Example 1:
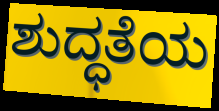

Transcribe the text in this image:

ಶುದ್ಧತೆಯ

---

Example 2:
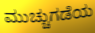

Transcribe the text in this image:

ಮುಚ್ಚುಗಡೆಯ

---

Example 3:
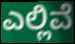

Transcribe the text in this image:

ಎಲ್ಲಿವೆ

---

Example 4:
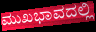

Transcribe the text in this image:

ಮುಖಭಾವದಲ್ಲಿ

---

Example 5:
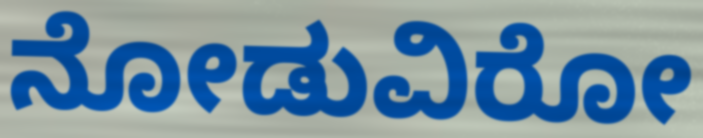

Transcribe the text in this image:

ನೋಡುವಿರೋ